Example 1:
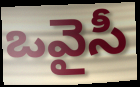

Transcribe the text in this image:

ఒవైసీ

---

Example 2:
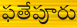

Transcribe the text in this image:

ఫతేపూరు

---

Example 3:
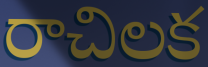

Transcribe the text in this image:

రాచిలక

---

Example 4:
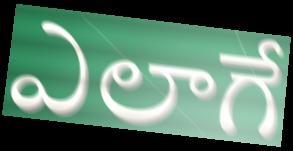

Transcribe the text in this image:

ఎలాగే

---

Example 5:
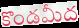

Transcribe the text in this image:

కొండమీద